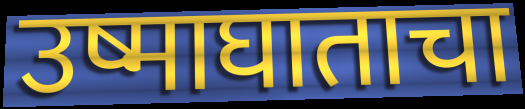
उष्माघाताचा